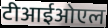
टीआईओएल